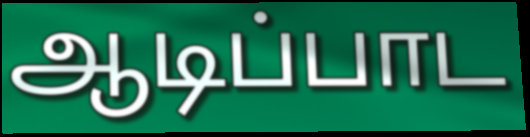
ஆடிப்பாட